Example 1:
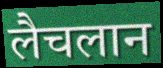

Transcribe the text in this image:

लैचलान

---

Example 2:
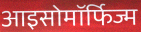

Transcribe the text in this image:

आइसोमॉर्फिज्म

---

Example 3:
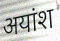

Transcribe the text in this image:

अयांश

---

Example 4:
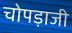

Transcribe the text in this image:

चोपड़ाजी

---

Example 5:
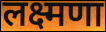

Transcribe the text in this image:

लक्ष्मणा